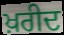
ਖ਼ਰੀਦ